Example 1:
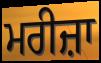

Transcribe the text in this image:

ਮਰੀਜ਼ਾ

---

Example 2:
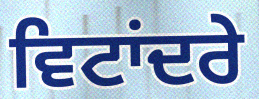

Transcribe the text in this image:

ਵਿਟਾਂਦਰੇ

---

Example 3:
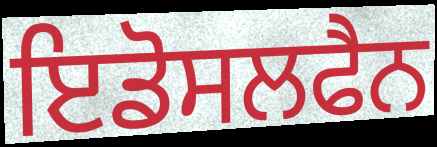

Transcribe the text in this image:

ਇਡੋਸਲਫੈਨ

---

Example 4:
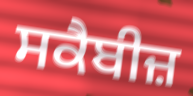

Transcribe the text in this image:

ਸਕੈਬੀਜ਼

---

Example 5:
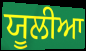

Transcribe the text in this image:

ਯੂਲੀਆ